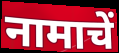
नामाचें